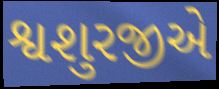
શ્વશુરજીએ